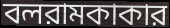
বলরামকাকার